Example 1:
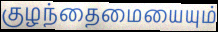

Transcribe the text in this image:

குழந்தைமையையும்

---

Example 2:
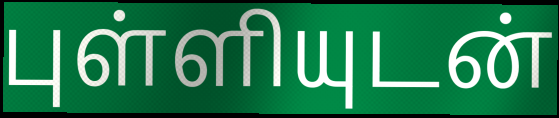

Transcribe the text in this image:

புள்ளியுடன்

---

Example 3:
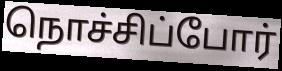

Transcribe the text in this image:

நொச்சிப்போர்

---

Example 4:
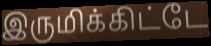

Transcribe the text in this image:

இருமிக்கிட்டே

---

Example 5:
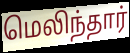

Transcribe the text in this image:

மெலிந்தார்